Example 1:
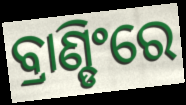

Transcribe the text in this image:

ବ୍ରାଣ୍ଡିଂରେ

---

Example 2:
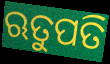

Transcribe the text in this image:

ଋତୁପତି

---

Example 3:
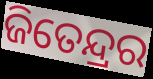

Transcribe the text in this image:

ଜିତେନ୍ଦ୍ରର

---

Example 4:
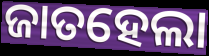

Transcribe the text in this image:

ଜାତହେଲା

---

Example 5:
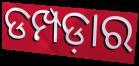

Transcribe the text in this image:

ଡମ୍ପଡ଼ାର